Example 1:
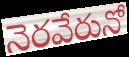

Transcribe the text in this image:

నెరవేరునో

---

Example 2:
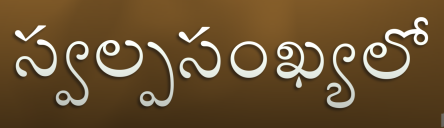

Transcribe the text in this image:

స్వల్పసంఖ్యలో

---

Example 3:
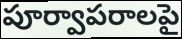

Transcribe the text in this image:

పూర్వాపరాలపై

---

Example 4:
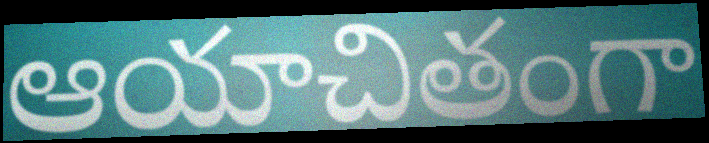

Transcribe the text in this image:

ఆయాచితంగా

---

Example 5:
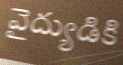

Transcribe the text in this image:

వైద్యుడికి